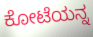
ಕೋಟೆಯನ್ನ